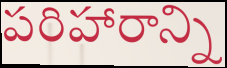
పరిహారాన్ని